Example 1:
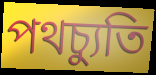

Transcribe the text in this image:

পথচ্যুতি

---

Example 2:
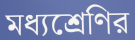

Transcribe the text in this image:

মধ্যশ্রেণির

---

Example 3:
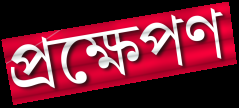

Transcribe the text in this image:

প্রক্ষেপণ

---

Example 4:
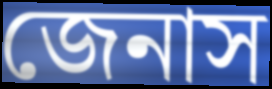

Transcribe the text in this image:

জেনাস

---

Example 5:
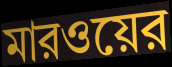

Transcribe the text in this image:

মারওয়ের